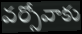
వర్సోవాకు